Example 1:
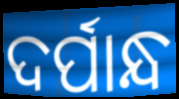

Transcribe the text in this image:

ଦର୍ପାନ୍ଧ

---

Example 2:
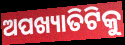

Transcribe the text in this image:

ଅପଖ୍ୟାତିଟିକୁ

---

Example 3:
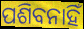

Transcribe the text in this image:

ପଶିବନାହିଁ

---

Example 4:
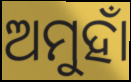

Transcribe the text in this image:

ଅମୁହାଁ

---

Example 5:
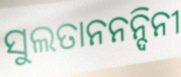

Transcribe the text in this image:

ସୁଲତାନନନ୍ଦିନୀ